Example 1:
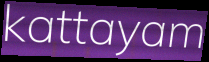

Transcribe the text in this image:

kattayam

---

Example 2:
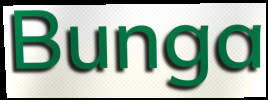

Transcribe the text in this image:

Bunga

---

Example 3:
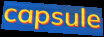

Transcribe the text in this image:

capsule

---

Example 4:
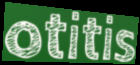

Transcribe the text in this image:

otitis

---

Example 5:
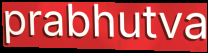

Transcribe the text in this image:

prabhutva